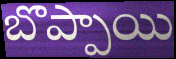
బొప్పాయి